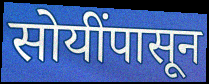
सोयींपासून